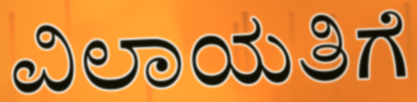
ವಿಲಾಯತಿಗೆ